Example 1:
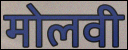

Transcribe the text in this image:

मोलवी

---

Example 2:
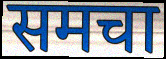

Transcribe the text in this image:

समचा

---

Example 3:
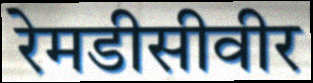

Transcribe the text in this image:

रेमडीसीवीर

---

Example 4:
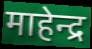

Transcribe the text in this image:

माहेन्द्र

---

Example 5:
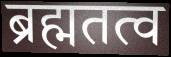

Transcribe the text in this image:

ब्रह्मतत्व